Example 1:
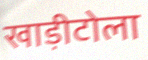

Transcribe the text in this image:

खाड़ीटोला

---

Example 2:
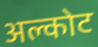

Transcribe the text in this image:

अल्कोट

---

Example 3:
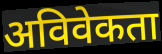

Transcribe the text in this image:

अविवेकता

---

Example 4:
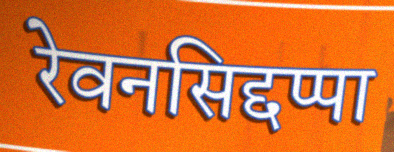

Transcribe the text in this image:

रेवनसिद्दप्पा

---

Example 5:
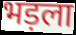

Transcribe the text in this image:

भड़ला